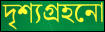
দৃশ্যগ্ৰহনো